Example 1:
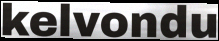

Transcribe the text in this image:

kelvondu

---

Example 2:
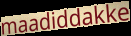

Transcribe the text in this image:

maadiddakke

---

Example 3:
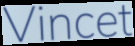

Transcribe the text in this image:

Vincet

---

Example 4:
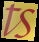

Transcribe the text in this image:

ts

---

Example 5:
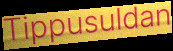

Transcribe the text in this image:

Tippusuldan